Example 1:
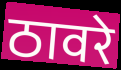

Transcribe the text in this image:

ठावरे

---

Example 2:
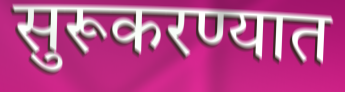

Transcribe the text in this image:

सुरूकरण्यात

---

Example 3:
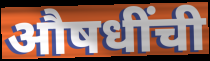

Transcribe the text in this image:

औषधींची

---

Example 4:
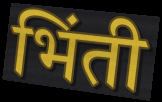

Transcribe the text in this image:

भिंती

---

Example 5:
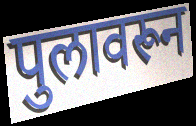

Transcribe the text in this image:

पुलावरून